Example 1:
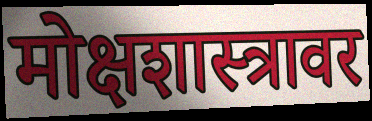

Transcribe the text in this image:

मोक्षशास्त्रावर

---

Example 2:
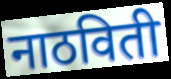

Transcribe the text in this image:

नाठविती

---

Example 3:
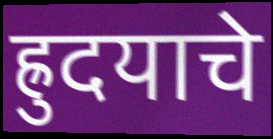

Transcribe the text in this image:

ह्रुदयाचे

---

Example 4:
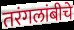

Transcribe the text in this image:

तरंगलांबीचे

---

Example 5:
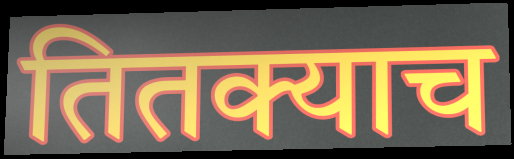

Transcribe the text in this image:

तितक्याच